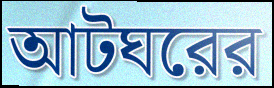
আটঘরের